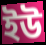
ইউ